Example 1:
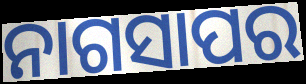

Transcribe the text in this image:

ନାଗସାପର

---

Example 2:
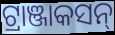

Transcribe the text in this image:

ଟ୍ରାଞ୍ଜାକସନ୍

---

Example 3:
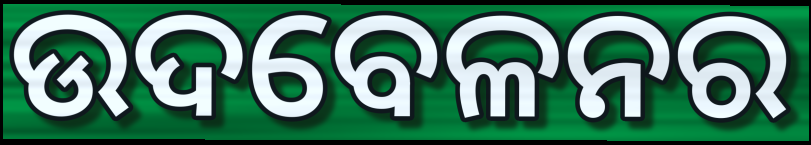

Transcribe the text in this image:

ଉଦବେଳନର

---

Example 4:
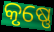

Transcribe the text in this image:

କୃଷ୍ଣେ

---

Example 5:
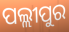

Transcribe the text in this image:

ପଲ୍ଲୀପୁର